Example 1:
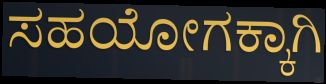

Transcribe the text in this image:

ಸಹಯೋಗಕ್ಕಾಗಿ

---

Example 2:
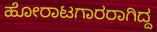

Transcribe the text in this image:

ಹೋರಾಟಗಾರರಾಗಿದ್ದ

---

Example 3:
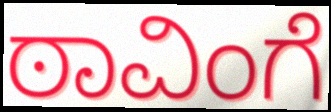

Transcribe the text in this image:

ಠಾವಿಂಗೆ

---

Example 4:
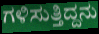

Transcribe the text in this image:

ಗಳಿಸುತ್ತಿದ್ದನು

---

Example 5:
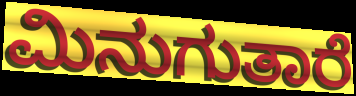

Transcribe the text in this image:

ಮಿನುಗುತಾರೆ